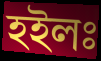
হইলঃ